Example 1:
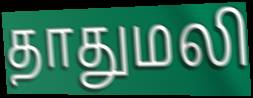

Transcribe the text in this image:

தாதுமலி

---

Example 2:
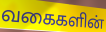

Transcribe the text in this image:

வகைகளின்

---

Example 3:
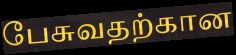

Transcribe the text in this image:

பேசுவதற்கான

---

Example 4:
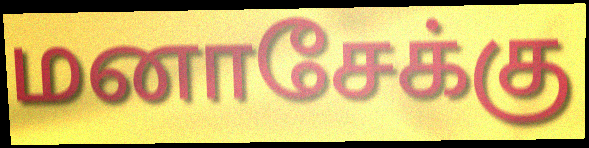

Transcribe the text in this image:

மனாசேக்கு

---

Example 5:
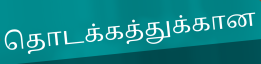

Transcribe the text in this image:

தொடக்கத்துக்கான